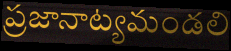
ప్రజానాట్యమండలి